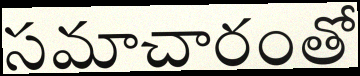
సమాచారంతో